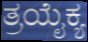
ತ್ರಯೈಕ್ಯ